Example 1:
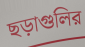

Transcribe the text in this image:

ছড়াগুলির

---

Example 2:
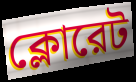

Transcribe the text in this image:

ক্লোরেট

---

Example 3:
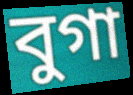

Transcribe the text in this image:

বুগা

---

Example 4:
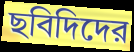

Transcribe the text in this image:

ছবিদিদের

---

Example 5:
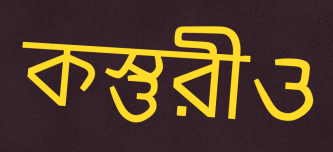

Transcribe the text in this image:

কস্তুরীও